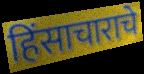
हिंसाचाराचे